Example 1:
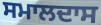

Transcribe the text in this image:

ਸਮਾਲਦਾਸ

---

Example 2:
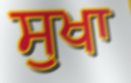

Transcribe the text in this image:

ਸੁਖਾ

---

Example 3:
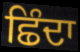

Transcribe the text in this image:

ਛਿੰਦਾ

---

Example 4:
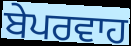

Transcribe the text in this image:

ਬੇਪਰਵਾਹ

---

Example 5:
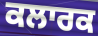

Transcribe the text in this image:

ਕਲਾਰਕ